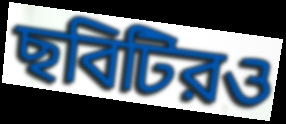
ছবিটিরও